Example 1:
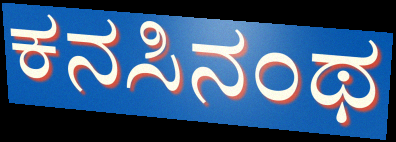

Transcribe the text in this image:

ಕನಸಿನಂಥ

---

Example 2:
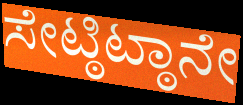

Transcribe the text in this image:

ಸೇಟ್ಠಿಟ್ಠಾನೇ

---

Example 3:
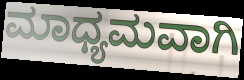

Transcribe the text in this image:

ಮಾಧ್ಯಮವಾಗಿ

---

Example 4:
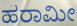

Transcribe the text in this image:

ಹರಾಮೀ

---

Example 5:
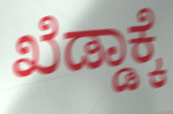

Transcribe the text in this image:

ಖೆಡ್ಡಾಕ್ಕೆ